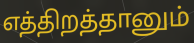
எத்திறத்தானும்